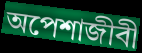
অপেশাজীবী